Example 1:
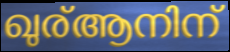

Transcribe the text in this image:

ഖുര്ആനിന്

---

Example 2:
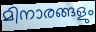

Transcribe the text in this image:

മിനാരങ്ങളും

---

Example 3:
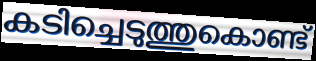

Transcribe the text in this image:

കടിച്ചെടുത്തുകൊണ്ട്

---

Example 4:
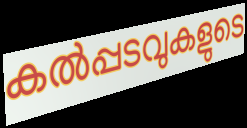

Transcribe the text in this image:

കൽപ്പടവുകളുടെ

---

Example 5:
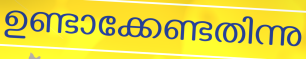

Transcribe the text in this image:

ഉണ്ടാക്കേണ്ടതിന്നു